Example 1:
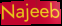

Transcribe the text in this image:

Najeeb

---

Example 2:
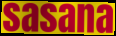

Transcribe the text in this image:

sasana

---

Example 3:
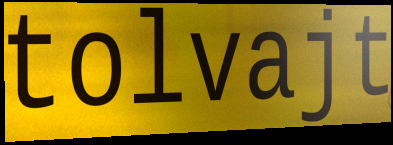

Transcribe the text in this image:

tolvajt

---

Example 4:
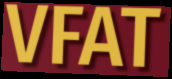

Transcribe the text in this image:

VFAT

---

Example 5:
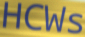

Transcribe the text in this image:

HCWs